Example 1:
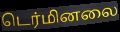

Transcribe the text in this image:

டெர்மினலை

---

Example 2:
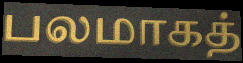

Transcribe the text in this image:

பலமாகத்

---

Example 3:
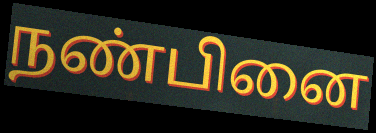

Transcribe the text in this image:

நண்பினை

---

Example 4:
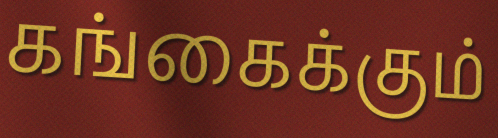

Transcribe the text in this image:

கங்கைக்கும்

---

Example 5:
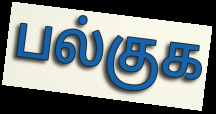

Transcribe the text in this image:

பல்குக